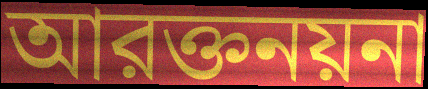
আরক্তনয়না